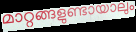
മാറ്റങ്ങളുണ്ടായാലും